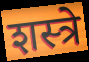
शस्त्रे